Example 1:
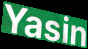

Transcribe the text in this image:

Yasin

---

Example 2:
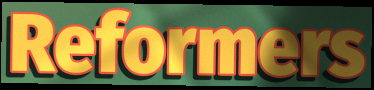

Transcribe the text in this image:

Reformers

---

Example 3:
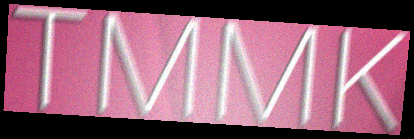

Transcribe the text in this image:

TMMK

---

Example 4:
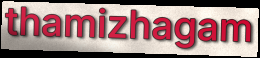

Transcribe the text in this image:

thamizhagam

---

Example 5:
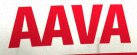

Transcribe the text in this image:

AAVA